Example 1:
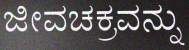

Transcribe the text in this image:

ಜೀವಚಕ್ರವನ್ನು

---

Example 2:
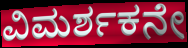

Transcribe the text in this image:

ವಿಮರ್ಶಕನೇ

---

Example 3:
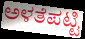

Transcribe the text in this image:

ಅಳತೆಪಟ್ಟಿ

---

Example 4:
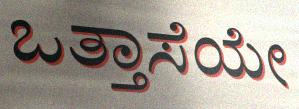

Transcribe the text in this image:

ಒತ್ತಾಸೆಯೇ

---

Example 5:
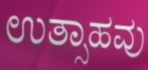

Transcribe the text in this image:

ಉತ್ಸಾಹವು